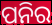
ପନିର